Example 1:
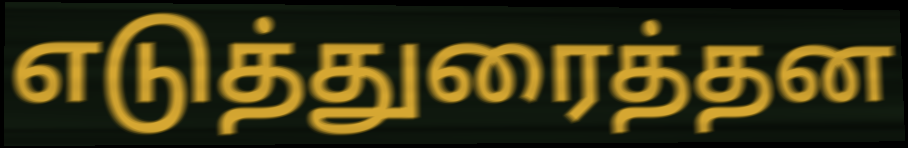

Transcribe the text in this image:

எடுத்துரைத்தன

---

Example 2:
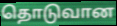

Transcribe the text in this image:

தொடுவான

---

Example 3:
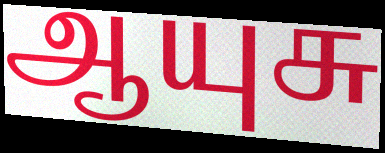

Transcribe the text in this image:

ஆயுசு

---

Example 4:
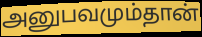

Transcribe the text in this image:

அனுபவமும்தான்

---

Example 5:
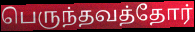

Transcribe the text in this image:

பெருந்தவத்தோர்